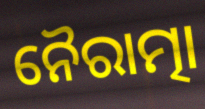
ନୈରାତ୍ମା